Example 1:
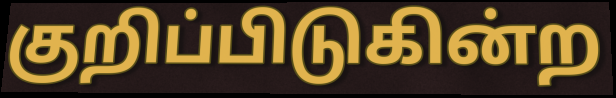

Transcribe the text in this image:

குறிப்பிடுகின்ற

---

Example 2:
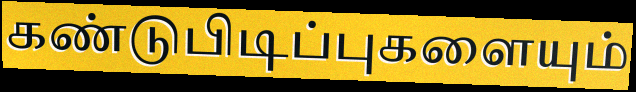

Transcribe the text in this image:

கண்டுபிடிப்புகளையும்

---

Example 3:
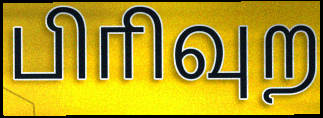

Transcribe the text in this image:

பிரிவுற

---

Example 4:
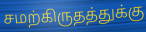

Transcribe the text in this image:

சமற்கிருதத்துக்கு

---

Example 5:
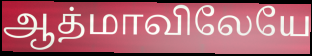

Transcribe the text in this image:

ஆத்மாவிலேயே